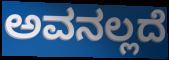
ಅವನಲ್ಲದೆ